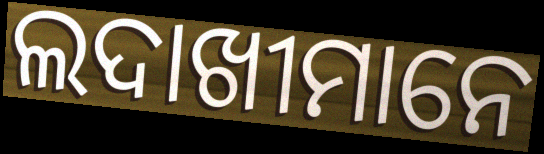
ଲଦାଖୀମାନେ